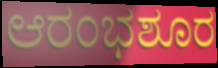
ಆರಂಭಶೂರ